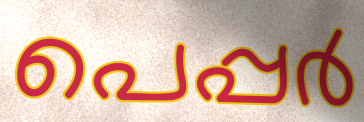
പെപ്പർ